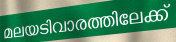
മലയടിവാരത്തിലേക്ക്